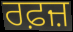
ਰਫ਼ਜ਼